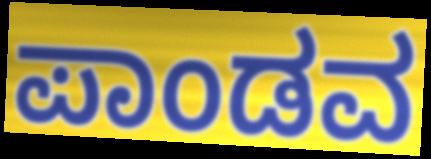
ಪಾಂಡವ